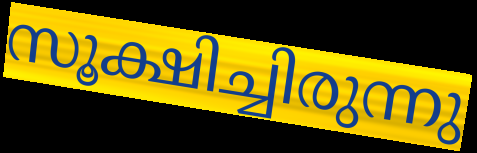
സൂക്ഷിച്ചിരുന്നു